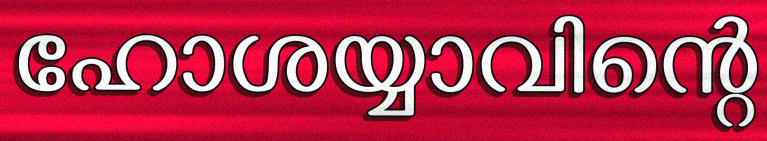
ഹോശയ്യാവിന്റെ